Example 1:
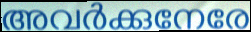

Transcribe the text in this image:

അവർക്കുനേരേ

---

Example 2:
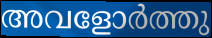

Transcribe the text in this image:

അവളോർത്തു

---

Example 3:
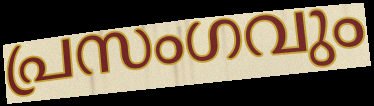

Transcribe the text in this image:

പ്രസംഗവും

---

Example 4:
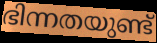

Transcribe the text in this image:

ഭിന്നതയുണ്ട്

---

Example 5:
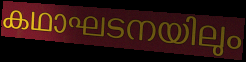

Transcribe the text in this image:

കഥാഘടനയിലും